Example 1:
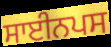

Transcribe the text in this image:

ਸਾਈਨਪਸ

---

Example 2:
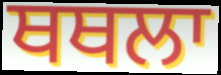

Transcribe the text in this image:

ਥਥਲਾ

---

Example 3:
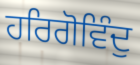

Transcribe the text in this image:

ਹਰਿਗੋਵਿੰਦੁ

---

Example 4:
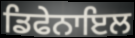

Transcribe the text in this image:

ਡਿਫੇਨਾਇਲ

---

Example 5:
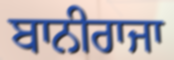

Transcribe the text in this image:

ਬਾਨੀਰਾਜਾ